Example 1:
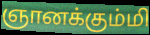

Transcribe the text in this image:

ஞானக்கும்மி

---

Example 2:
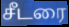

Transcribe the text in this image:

சீடரை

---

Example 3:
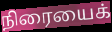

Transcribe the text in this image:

நிரையைக்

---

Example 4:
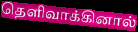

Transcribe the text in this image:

தெளிவாக்கினால்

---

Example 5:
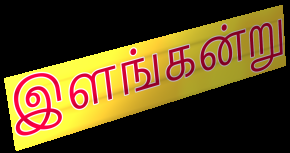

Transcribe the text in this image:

இளங்கன்று